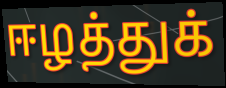
ஈழத்துக்